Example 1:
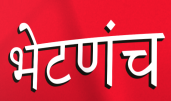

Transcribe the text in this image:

भेटणंच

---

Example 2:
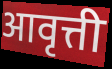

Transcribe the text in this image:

आवृत्ती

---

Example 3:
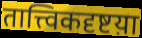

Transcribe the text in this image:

तात्त्विकदृष्टय़ा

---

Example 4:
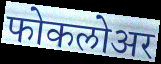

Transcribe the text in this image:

फोकलोअर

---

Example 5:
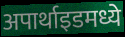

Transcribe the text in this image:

अपार्थाइडमध्ये